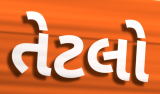
તેટલો